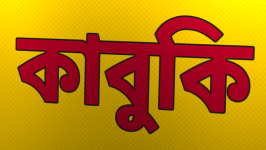
কাবুকি